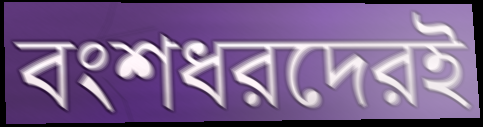
বংশধরদেরই